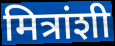
मित्रांशी